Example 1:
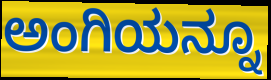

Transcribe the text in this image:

ಅಂಗಿಯನ್ನೂ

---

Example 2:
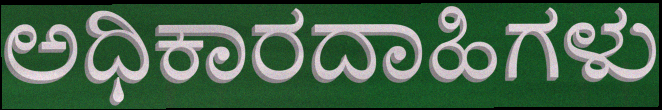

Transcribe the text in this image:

ಅಧಿಕಾರದಾಹಿಗಳು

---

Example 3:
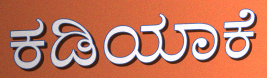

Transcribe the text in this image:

ಕಡಿಯಾಕೆ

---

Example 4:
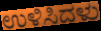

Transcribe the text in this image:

ಉಳಿಸಿದಳು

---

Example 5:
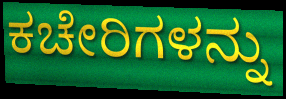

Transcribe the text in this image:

ಕಚೇರಿಗಳನ್ನು